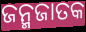
ଜନ୍ମଜାତକ